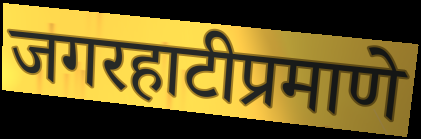
जगरहाटीप्रमाणे